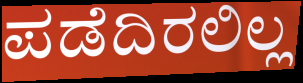
ಪಡೆದಿರಲಿಲ್ಲ